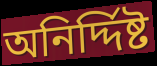
অনির্দ্দিষ্ট